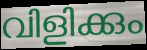
വിളിക്കും